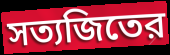
সত্যজিতের